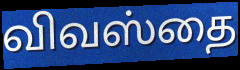
விவஸ்தை